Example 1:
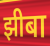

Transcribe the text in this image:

झीबा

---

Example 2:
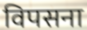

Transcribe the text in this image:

विपसना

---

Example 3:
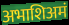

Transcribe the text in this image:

अभाशिअमं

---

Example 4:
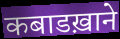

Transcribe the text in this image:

कबाडख़ाने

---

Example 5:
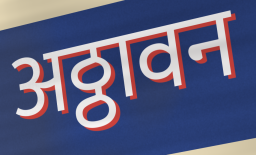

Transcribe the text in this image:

अठ्ठावन